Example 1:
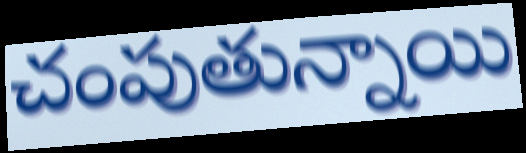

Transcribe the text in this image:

చంపుతున్నాయి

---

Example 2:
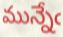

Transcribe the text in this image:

మున్నేఁ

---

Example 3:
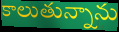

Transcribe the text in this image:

కాలుతున్నాను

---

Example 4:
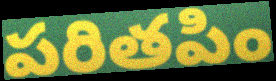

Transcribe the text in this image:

పరితపిం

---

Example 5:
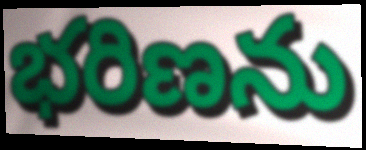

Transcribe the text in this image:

భరిణను